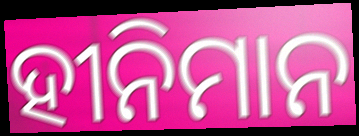
ହୀନିମାନ